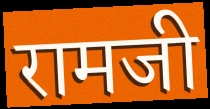
रामजी